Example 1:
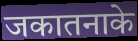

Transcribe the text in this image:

जकातनाके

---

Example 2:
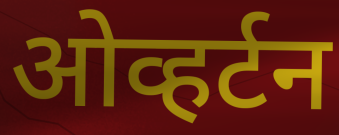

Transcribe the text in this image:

ओव्हर्टन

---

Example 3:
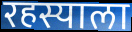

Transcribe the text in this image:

रहस्याला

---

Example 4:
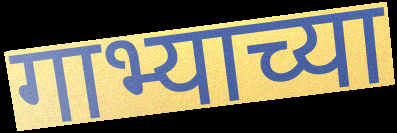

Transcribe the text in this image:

गाभ्याच्या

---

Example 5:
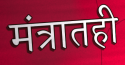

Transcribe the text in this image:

मंत्रातही